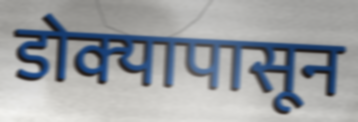
डोक्यापासून